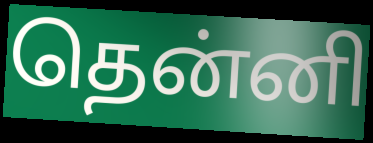
தென்னி